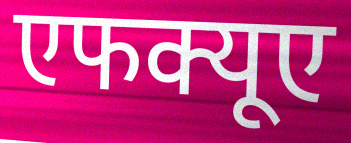
एफक्यूए